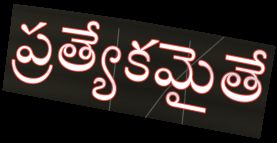
ప్రత్యేకమైతే